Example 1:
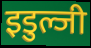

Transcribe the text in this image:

इडुल्जी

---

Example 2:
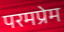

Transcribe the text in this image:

परमप्रेम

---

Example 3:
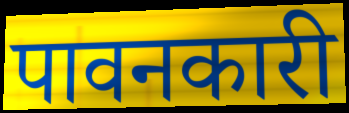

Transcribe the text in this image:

पावनकारी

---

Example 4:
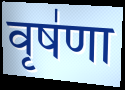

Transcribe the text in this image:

वृष॑णा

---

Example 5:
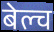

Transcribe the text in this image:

बेल्च